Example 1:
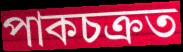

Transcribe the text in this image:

পাকচক্ৰত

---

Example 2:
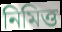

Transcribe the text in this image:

নিমিত্ত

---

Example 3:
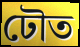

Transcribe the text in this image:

ঢৌত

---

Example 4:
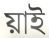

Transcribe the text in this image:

য়াই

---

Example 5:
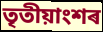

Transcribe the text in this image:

তৃতীয়াংশৰ